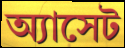
অ্যাসেট